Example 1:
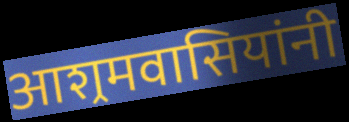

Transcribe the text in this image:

आश्रमवासियांनी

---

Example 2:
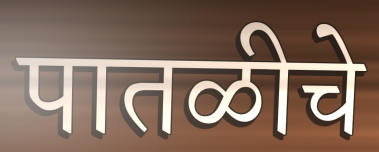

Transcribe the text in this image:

पातळीचे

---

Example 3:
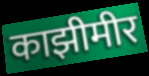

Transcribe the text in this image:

काझीमीर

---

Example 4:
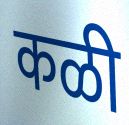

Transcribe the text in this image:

कळी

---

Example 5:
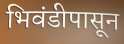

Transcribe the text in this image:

भिवंडीपासून